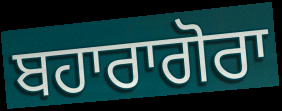
ਬਹਾਰਾਗੋਰਾ